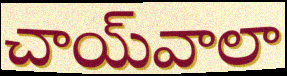
చాయ్‌వాలా